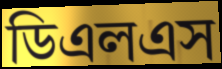
ডিএলএস